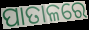
ପାତାଳରେ